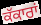
ਕੱਕਾਰਾਂ